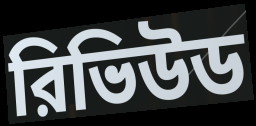
রিভিউড